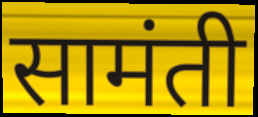
सामंती